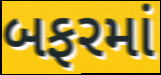
બફરમાં